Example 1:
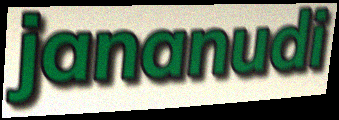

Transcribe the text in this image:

jananudi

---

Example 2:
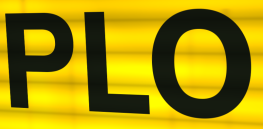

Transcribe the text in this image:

PLO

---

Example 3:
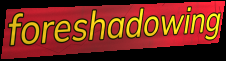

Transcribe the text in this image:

foreshadowing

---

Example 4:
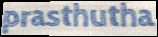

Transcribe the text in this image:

prasthutha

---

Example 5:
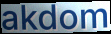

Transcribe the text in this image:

akdom